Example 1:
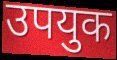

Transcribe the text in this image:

उपयुक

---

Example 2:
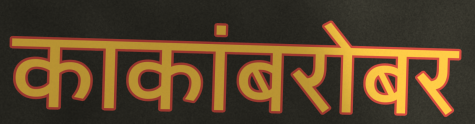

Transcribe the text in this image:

काकांबरोबर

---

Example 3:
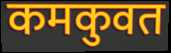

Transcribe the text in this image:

कमकुवत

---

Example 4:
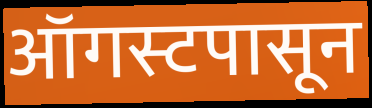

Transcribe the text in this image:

ऑगस्टपासून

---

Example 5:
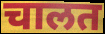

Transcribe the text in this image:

चालत